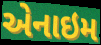
એનાઇમ